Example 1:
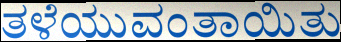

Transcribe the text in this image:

ತಳೆಯುವಂತಾಯಿತು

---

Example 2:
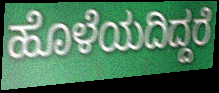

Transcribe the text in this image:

ಹೊಳೆಯದಿದ್ದರೆ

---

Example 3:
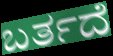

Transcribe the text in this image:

ಬರ್ತದೆ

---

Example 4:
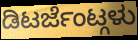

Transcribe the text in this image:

ಡಿಟರ್ಜೆಂಟ್ಗಳು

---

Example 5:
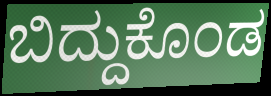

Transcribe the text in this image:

ಬಿದ್ದುಕೊಂಡ